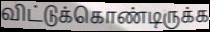
விட்டுக்கொண்டிருக்க